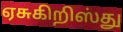
ஏசுகிறிஸ்து